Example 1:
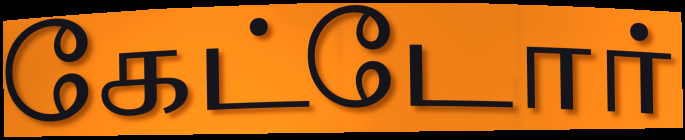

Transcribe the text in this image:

கேட்டோர்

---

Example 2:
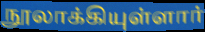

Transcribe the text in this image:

நூலாக்கியுள்ளார்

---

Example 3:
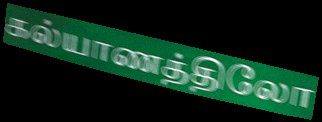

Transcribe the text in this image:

கல்யாணத்திலோ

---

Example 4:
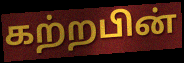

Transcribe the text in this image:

கற்றபின்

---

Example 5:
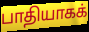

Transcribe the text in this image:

பாதியாகக்